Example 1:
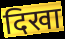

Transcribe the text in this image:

दिखा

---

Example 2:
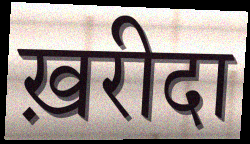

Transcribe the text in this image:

ख़रीदा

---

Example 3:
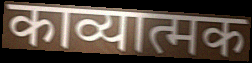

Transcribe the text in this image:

काव्यात्मक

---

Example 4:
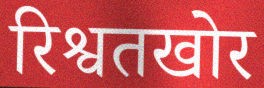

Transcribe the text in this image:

रिश्वतखोर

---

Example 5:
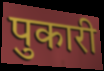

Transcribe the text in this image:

पुकारी